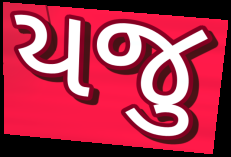
યજુ